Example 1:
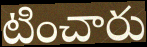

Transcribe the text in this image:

టించారు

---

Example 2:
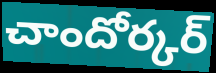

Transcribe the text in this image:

చాందోర్కర్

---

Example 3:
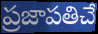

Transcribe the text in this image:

ప్రజాపతిచే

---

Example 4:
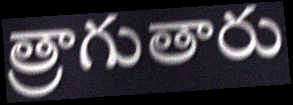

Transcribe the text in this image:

త్రాగుతారు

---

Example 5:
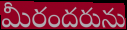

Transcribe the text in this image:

మీరందరును